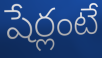
షేర్లంటే